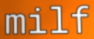
milf